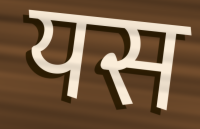
यस